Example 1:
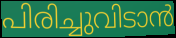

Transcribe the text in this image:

പിരിച്ചുവിടാൻ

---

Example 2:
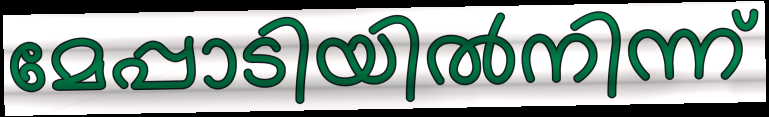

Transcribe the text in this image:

മേപ്പാടിയിൽനിന്ന്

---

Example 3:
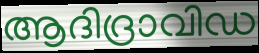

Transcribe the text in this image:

ആദിദ്രാവിഡ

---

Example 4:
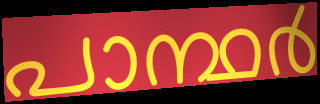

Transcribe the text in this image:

പാന്ഥർ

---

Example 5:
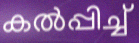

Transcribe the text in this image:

കൽപ്പിച്ച്